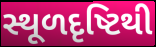
સ્થૂળદૃષ્ટિથી